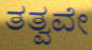
ತತ್ವವೇ